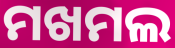
ମଖମଲ